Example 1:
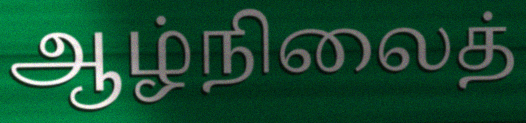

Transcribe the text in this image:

ஆழ்நிலைத்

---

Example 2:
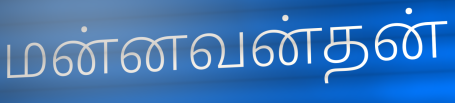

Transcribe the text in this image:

மன்னவன்தன்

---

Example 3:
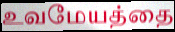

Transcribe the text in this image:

உவமேயத்தை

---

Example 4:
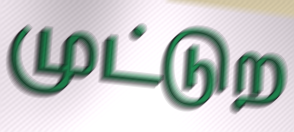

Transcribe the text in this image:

முட்டுற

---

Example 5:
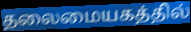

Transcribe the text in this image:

தலைமையகத்தில்